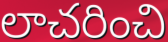
లాచరించి